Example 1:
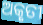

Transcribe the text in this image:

ଅକୃତୀ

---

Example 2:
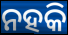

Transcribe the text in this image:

ନହକି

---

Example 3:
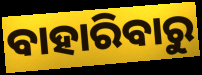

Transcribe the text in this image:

ବାହାରିବାରୁ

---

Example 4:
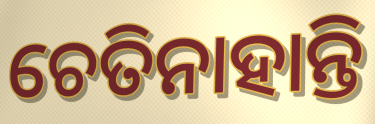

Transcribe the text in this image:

ଚେତିନାହାନ୍ତି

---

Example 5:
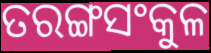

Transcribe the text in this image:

ତରଙ୍ଗସଂକୁଳ